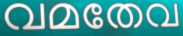
വമതേവ